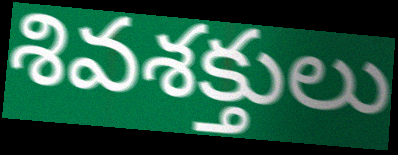
శివశక్తులు